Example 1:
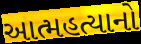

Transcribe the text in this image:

આત્મહત્યાનો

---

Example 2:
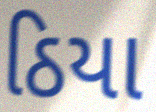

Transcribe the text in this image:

ઠિયા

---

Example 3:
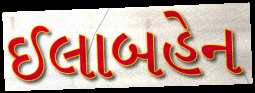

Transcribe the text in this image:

ઈલાબહેન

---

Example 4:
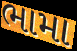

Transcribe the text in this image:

ભામા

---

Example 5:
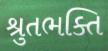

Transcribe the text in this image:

શ્રુતભક્તિ